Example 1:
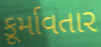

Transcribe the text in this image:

કૂર્માવતાર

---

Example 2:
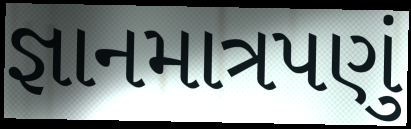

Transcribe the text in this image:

જ્ઞાનમાત્રપણું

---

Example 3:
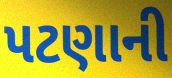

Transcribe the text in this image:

પટણાની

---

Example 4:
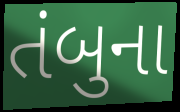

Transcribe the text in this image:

તંબુના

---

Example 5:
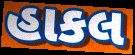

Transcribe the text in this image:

હાકલ